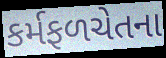
કર્મફળચેતના